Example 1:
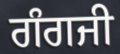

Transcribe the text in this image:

ਗੰਗਜੀ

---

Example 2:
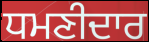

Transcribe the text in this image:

ਧਮਣੀਦਾਰ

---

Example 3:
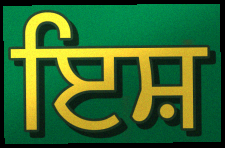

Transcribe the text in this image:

ਇਸ਼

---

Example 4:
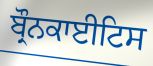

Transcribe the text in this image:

ਬ੍ਰੌਨਕਾਈਟਿਸ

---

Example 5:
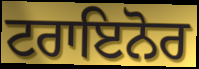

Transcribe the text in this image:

ਟਰਾਇਨੋਰ